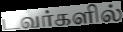
டவர்களில்